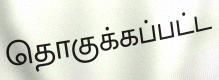
தொகுக்கப்பட்ட